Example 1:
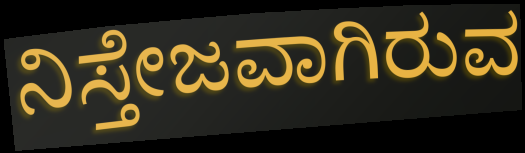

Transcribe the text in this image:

ನಿಸ್ತೇಜವಾಗಿರುವ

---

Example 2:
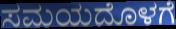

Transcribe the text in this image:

ಸಮಯದೊಳಗೆ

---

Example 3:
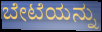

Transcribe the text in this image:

ಬೇಟೆಯನ್ನು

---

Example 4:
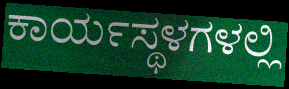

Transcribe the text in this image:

ಕಾರ್ಯಸ್ಥಳಗಳಲ್ಲಿ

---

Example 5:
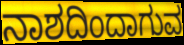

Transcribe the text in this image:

ನಾಶದಿಂದಾಗುವ